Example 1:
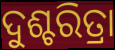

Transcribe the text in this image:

ଦୁଶ୍ଚରିତ୍ରା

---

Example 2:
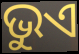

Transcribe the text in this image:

ଭୁଏ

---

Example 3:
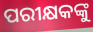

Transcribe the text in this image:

ପରୀକ୍ଷକଙ୍କୁ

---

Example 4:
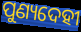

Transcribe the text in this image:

ପୁଣ୍ୟଦେହୀ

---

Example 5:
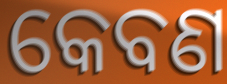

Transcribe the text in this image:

କେବଣ